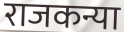
राजकन्या